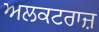
ਅਲਕਟਰਾਜ਼